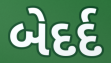
બેદર્દ